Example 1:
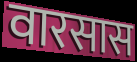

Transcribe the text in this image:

वारसास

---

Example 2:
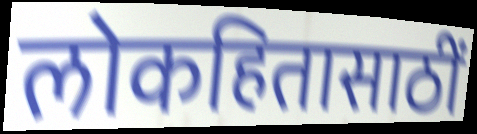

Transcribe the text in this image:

लोकहितासाठीं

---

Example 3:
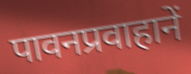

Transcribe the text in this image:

पावनप्रवाहानें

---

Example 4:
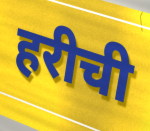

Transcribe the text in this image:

हरीची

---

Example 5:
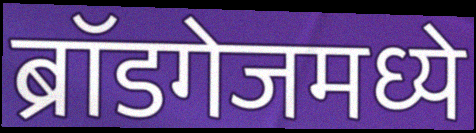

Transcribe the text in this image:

ब्रॉडगेजमध्ये